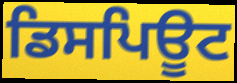
ਡਿਸਪਿਊਟ